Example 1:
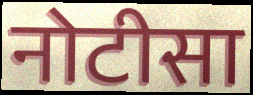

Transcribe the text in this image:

नोटीसा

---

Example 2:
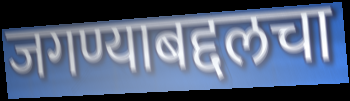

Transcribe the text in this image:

जगण्याबद्दलचा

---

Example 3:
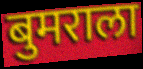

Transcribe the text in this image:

बुमराला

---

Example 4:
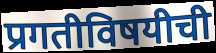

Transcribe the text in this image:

प्रगतीविषयीची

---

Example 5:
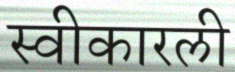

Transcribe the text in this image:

स्वीकारली